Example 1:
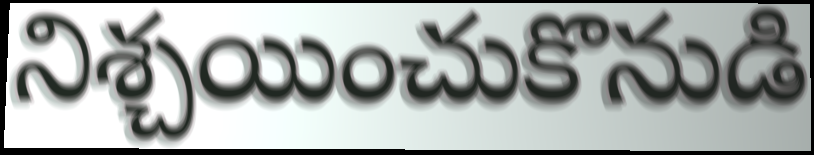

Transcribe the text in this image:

నిశ్చయించుకొనుడి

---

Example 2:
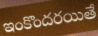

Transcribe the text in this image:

ఇంకొందరయితే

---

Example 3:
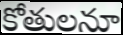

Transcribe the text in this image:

కోతులనూ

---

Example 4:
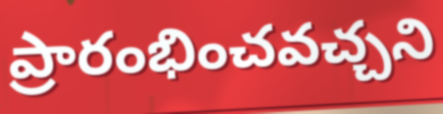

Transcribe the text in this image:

ప్రారంభించవచ్చని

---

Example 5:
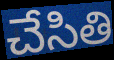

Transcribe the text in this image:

చేసితి